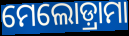
ମେଲୋଡ଼୍ରାମା